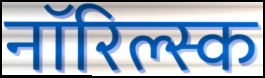
नॉरिल्स्क